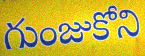
గుంజుకోని